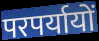
परपर्यायों